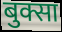
बुक्सा